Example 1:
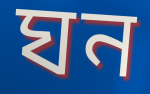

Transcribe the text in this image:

ঘন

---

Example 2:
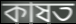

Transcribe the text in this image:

কাষত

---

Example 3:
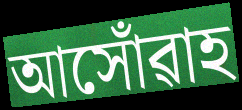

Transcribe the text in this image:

আসোঁৱাহ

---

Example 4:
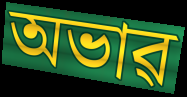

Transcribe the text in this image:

অভাৱ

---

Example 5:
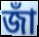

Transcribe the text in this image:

জাঁ